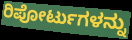
ರಿಪೋರ್ಟುಗಳನ್ನು